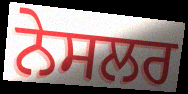
ਨੇਸਲਰ